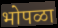
भोपळा